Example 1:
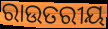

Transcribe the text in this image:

ରାଉତରୀୟ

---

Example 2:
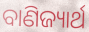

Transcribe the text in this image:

ବାଣିଜ୍ୟାର୍ଥ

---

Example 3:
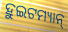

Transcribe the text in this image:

ହୁଇଟମ୍ୟାନ୍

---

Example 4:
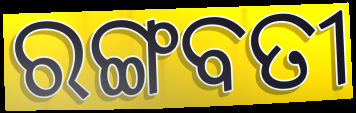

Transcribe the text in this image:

ରଙ୍ଗବତୀ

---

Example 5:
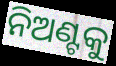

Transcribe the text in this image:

ନିଅଣ୍ଟକୁ